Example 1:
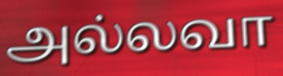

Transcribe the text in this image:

அல்லவா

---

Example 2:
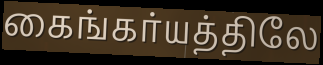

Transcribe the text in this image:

கைங்கர்யத்திலே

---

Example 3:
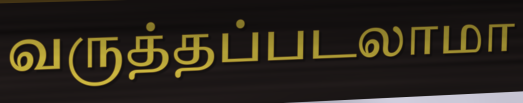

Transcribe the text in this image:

வருத்தப்படலாமா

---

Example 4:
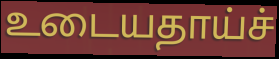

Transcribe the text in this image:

உடையதாய்ச்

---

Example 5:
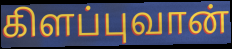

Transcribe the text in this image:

கிளப்புவான்